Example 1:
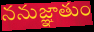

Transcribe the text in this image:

ననుజ్ఞాతుం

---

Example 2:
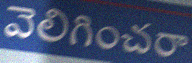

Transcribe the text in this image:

వెలిగించరా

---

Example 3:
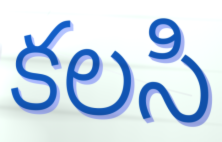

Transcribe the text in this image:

కలసి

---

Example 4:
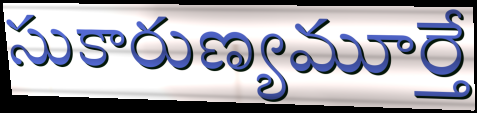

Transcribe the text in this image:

సుకారుణ్యమూర్తే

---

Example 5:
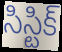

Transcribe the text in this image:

సిస్టిక్